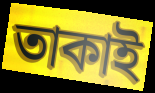
তাকাই